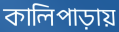
কালিপাড়ায়